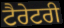
ਟੈਰੇਟਰੀ